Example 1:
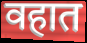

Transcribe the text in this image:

वहात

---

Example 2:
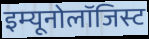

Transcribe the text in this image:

इम्यूनोलॉजिस्ट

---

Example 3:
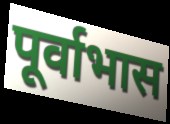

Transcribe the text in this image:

पूर्वाभास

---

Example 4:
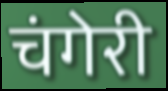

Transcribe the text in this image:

चंगेरी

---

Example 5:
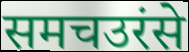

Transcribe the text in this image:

समचउरंसे